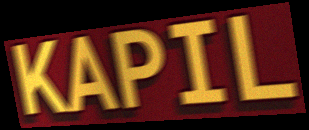
KAPIL